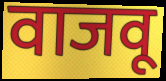
वाजवू